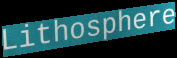
Lithosphere